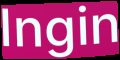
Ingin